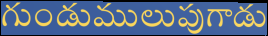
గుండుములుపుగాడు